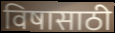
विषासाठी